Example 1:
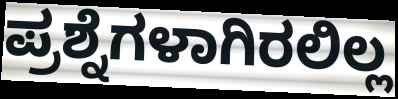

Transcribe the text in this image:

ಪ್ರಶ್ನೆಗಳಾಗಿರಲಿಲ್ಲ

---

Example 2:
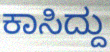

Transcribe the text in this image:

ಕಾಸಿದ್ದು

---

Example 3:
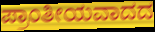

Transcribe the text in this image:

ಪ್ರಾಂತೀಯವಾದದ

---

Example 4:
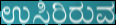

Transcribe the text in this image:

ಉಸಿರಿರುವ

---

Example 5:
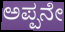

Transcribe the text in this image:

ಅಪ್ಪನೇ